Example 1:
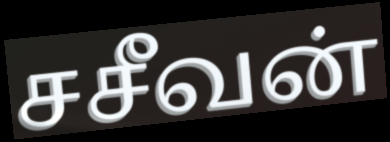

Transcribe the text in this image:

சசீவன்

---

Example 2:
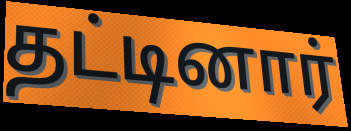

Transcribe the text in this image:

தட்டினார்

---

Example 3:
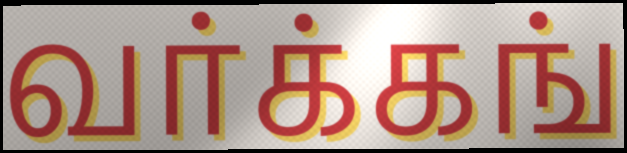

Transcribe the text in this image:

வர்க்கங்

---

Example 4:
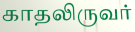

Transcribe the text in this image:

காதலிருவர்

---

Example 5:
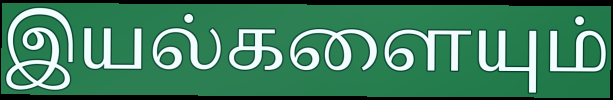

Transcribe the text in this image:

இயல்களையும்